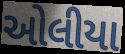
ઓલીયા